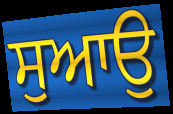
ਸੁਆਉ